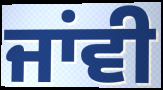
ਜਾਂਵੀ